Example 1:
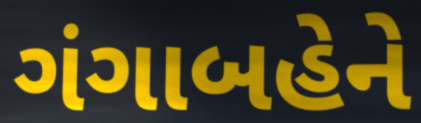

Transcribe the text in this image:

ગંગાબહેને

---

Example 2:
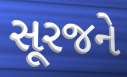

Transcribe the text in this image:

સૂરજને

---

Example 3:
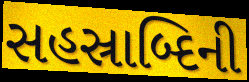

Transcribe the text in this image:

સહસ્રાબ્દિની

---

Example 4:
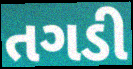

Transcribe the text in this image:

તગડી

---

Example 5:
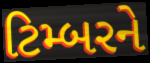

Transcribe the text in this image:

ટિમ્બરને